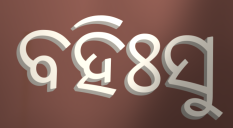
ବହିଃସୁ